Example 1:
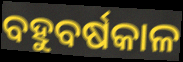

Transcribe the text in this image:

ବହୁବର୍ଷକାଳ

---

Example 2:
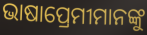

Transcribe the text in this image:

ଭାଷାପ୍ରେମୀମାନଙ୍କୁ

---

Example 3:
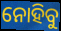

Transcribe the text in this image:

ନୋହିବୁ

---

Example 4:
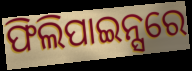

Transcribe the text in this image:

ଫିଲିପାଇନ୍ସରେ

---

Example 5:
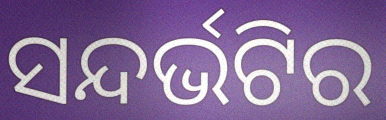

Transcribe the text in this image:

ସନ୍ଦର୍ଭଟିର